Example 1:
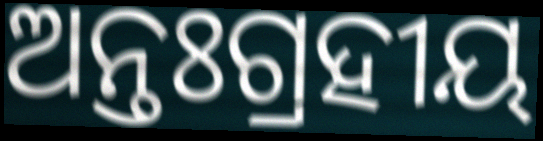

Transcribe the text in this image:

ଅନ୍ତଃଗ୍ରହୀୟ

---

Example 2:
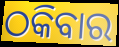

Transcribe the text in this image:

ଠକିବାର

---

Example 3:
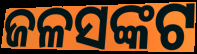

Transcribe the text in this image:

ଜଳସଙ୍କଟ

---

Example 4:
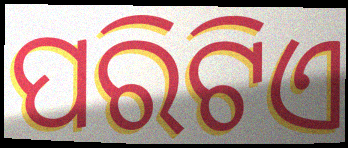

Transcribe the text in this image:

ପରିଟିଏ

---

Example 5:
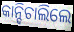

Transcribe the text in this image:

କାନ୍ଦିଚାଲିଲେ